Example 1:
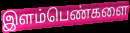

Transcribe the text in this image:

இளம்பெண்களை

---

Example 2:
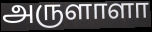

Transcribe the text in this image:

அருளாளா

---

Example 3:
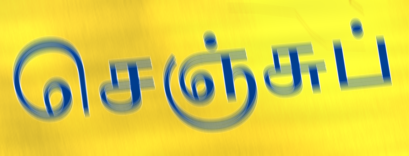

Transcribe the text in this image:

செஞ்சுப்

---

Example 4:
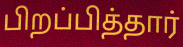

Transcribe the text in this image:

பிறப்பித்தார்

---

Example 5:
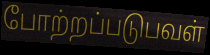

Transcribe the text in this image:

போற்றப்படுபவள்